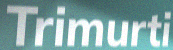
Trimurti